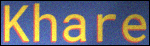
Khare